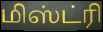
மிஸ்ட்ரி